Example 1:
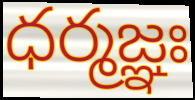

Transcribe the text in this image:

ధర్మజ్ఞః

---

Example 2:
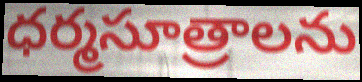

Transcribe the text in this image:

ధర్మసూత్రాలను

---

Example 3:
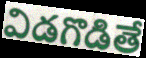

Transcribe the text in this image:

విడగొడితే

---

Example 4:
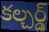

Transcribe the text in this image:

కల్చర్డ్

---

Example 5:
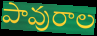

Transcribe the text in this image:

పావురాల